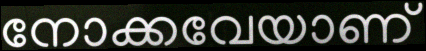
നോക്കവേയാണ്